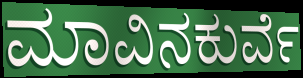
ಮಾವಿನಕುರ್ವೆ